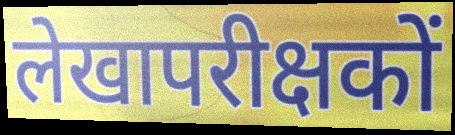
लेखापरीक्षकों